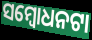
ସମ୍ବୋଧନଟା